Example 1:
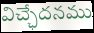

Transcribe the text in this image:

విచ్ఛేదనము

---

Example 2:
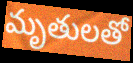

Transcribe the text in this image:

మృతులతో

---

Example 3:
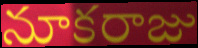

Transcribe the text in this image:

నూకరాజు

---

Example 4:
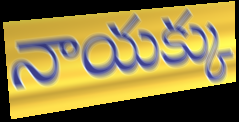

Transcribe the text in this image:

నాయక్కు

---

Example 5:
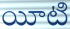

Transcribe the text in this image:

యీటి